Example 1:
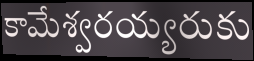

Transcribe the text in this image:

కామేశ్వరయ్యరుకు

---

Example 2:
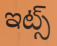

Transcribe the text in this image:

ఇట్స్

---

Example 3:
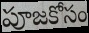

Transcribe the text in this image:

పూజకోసం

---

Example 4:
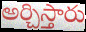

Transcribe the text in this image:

అర్చిస్తారు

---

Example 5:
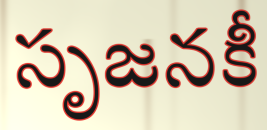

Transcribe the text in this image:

సృజనకీ